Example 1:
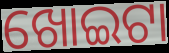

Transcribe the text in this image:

ଖୋଇଟା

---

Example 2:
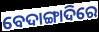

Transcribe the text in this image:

ବେଦାଙ୍ଗାଦିରେ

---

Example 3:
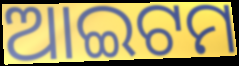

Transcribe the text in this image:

ଆଇଟମ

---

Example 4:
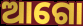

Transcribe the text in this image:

ଆଗୋ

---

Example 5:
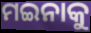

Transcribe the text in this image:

ମଇନାକୁ